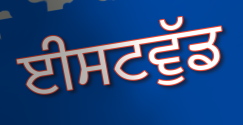
ਈਸਟਵੁੱਡ